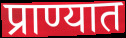
प्राण्यात